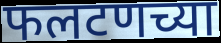
फलटणच्या